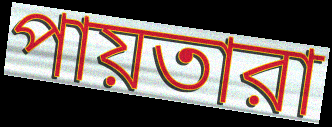
পায়তারা